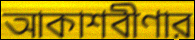
আকাশবীণার